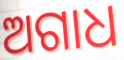
ଅଗାଧ